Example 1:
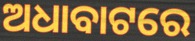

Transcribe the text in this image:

ଅଧାବାଟରେ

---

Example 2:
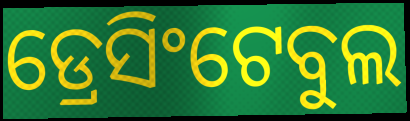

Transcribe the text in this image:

ଡ୍ରେସିଂଟେବୁଲ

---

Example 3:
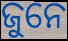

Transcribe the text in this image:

ଜୁନେ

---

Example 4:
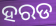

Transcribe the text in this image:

ହରଡ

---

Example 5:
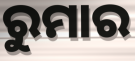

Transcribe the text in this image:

ରୁମାର